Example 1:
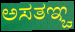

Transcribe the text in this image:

ಅಸತಞ್ಚ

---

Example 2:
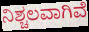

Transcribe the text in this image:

ನಿಶ್ಚಲವಾಗಿವೆ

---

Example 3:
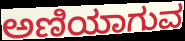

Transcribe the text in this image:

ಅಣಿಯಾಗುವ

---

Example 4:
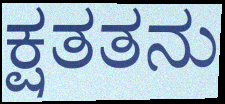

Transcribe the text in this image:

ಕ್ಷತತನು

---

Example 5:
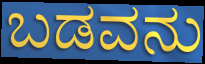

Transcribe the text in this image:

ಬಡವನು